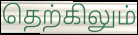
தெற்கிலும்